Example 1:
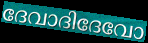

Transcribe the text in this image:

ദേവാദിദേവോ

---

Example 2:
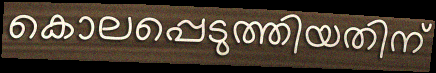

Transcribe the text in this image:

കൊലപ്പെടുത്തിയതിന്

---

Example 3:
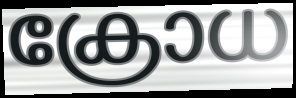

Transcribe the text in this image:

ക്രോധ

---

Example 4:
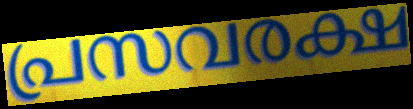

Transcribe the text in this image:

പ്രസവരക്ഷ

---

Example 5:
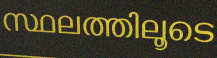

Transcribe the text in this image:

സ്ഥലത്തിലൂടെ